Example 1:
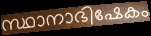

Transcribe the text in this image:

സ്ഥാനാഭിഷേകം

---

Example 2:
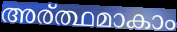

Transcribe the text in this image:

അര്ത്ഥമാകാം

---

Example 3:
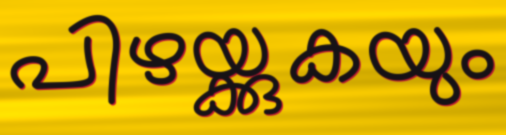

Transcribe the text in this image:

പിഴയ്ക്കുകയും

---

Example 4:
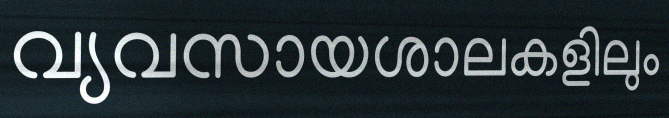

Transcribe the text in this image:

വ്യവസായശാലകളിലും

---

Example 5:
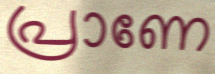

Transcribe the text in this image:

പ്രാണേ